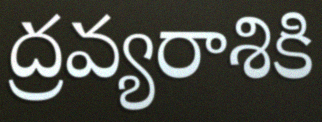
ద్రవ్యరాశికి